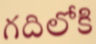
గదిలోకి